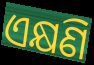
ଏକ୍ଷଣି